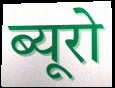
ब्यूरो